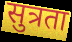
सुत्रता